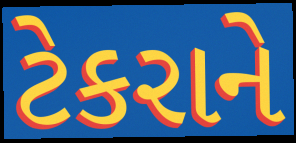
ટેકરાને